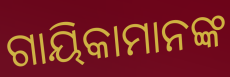
ଗାୟିକାମାନଙ୍କ